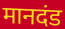
मानदंड